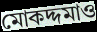
মোকদ্দমাও